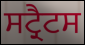
ਸਟ੍ਰੈਟਸ